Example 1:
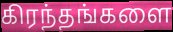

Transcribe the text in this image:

கிரந்தங்களை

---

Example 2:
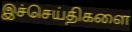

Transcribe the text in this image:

இச்செய்திகளை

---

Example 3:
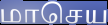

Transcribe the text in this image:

மாசெய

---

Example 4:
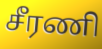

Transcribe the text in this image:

சீரணி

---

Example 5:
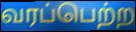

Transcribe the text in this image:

வரப்பெற்ற